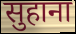
सुहाना